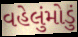
વહેલુંમોડું